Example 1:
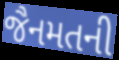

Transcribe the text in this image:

જૈનમતની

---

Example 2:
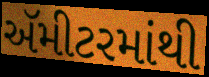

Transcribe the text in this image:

ઍમીટરમાંથી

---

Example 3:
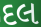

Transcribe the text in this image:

દલ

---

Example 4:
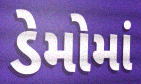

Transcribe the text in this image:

ડેમોમાં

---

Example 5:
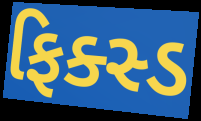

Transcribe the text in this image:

ફિક્સ્ડ